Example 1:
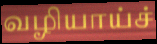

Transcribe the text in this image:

வழியாய்ச்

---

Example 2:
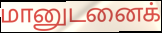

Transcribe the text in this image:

மானுடனைக்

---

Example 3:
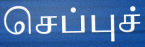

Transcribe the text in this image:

செப்புச்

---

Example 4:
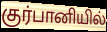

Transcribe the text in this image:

குர்பானியில்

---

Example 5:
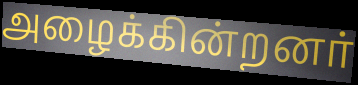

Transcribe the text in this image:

அழைக்கின்றனர்